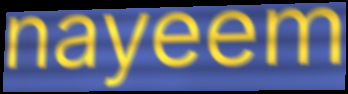
nayeem